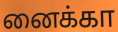
னைக்கா